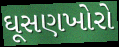
ઘૂસણખોરો